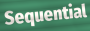
Sequential